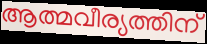
ആത്മവീര്യത്തിന്